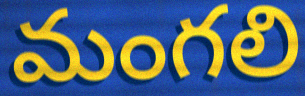
మంగలి